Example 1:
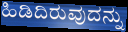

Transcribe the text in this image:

ಹಿಡಿದಿರುವುದನ್ನು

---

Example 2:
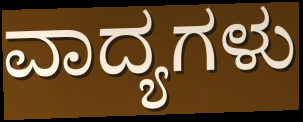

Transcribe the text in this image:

ವಾದ್ಯಗಳು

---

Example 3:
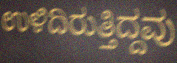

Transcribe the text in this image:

ಉಳಿದಿರುತ್ತಿದ್ದವು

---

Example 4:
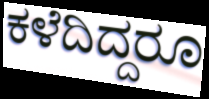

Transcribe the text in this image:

ಕಳೆದಿದ್ದರೂ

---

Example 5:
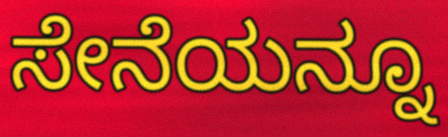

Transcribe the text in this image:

ಸೇನೆಯನ್ನೂ